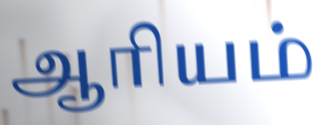
ஆரியம்